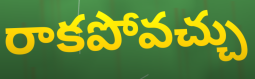
రాకపోవచ్చు